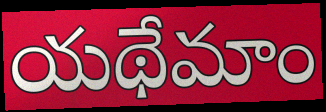
యథేమాం